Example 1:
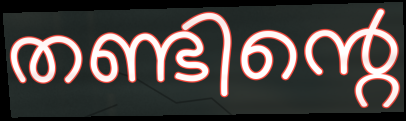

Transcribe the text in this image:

തണ്ടിന്റെ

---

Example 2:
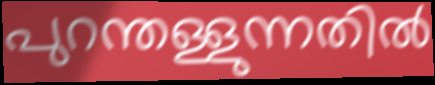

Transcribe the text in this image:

പുറന്തള്ളുന്നതിൽ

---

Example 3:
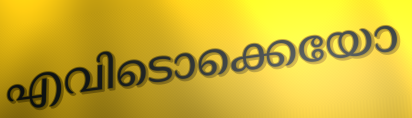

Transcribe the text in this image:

എവിടൊക്കെയോ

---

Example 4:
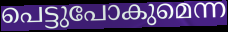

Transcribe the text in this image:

പെട്ടുപോകുമെന്ന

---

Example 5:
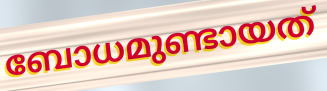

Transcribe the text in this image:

ബോധമുണ്ടായത്